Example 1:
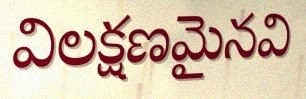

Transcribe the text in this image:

విలక్షణమైనవి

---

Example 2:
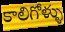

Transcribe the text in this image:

కాలిగోళ్ళు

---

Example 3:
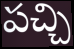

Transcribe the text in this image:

పచ్చి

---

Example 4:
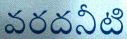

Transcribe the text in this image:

వరదనీటి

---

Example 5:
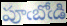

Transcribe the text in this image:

పూఁబోఁడి